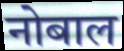
नोबाल